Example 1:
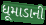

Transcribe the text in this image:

ધૂમાડાની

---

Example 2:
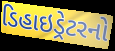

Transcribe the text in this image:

ડિહાઇડ્રેટરનો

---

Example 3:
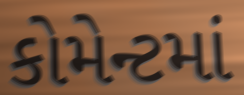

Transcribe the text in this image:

કોમેન્ટમાં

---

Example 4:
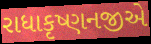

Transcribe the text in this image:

રાધાકૃષ્ણનજીએ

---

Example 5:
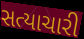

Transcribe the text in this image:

સત્યાચારી